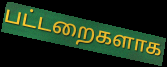
பட்டறைகளாக